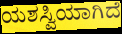
ಯಶಸ್ವಿಯಾಗಿದೆ